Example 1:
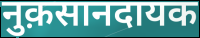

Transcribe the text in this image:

नुक़सानदायक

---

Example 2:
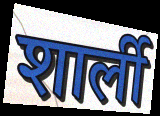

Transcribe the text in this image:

शार्ली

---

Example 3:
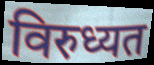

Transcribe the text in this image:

विरुध्यत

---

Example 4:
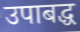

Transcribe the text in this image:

उपाबद्ध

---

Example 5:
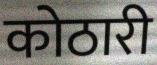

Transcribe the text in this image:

कोठारी